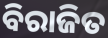
ବିରାଜିତ